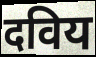
दविय